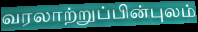
வரலாற்றுப்பின்புலம்